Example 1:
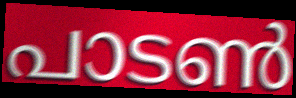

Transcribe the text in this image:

പാടൺ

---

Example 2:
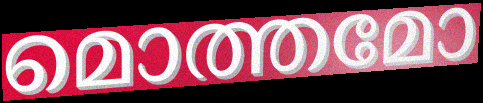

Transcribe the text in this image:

മൊത്തമോ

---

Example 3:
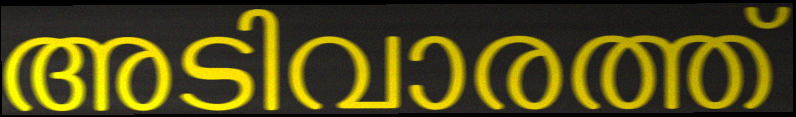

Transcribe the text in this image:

അടിവാരത്ത്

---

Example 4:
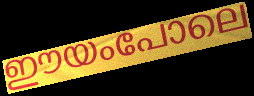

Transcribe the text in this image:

ഈയംപോലെ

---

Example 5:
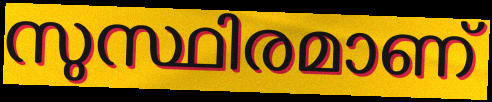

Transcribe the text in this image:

സുസ്ഥിരമാണ്